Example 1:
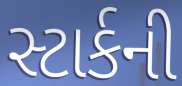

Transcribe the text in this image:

સ્ટાર્કની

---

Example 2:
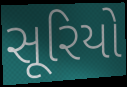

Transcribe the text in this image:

સૂરિયો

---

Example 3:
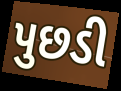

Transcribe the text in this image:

પુછડી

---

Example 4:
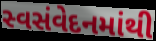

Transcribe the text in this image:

સ્વસંવેદનમાંથી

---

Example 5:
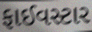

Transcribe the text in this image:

ફાઈવસ્ટાર